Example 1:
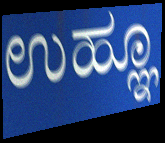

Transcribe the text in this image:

ಉಹ್ಞೂ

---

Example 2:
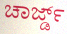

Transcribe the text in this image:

ಚಾರ್ಜ್ಡ್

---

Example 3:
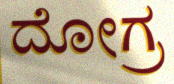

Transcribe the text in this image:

ದೋಗ್ರ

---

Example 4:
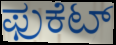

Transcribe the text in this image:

ಫುಕೆಟ್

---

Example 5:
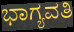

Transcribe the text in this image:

ಭಾಗ್ಯವತಿ